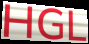
HGL